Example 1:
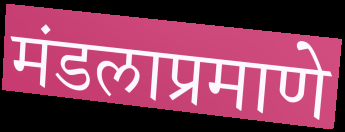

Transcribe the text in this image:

मंडलाप्रमाणे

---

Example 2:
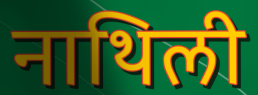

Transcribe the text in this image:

नाथिली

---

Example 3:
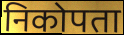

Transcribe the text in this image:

निकोपता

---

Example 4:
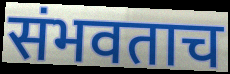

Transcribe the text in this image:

संभवताच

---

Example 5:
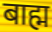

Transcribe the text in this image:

बाह्म